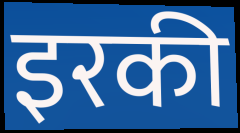
इरकी